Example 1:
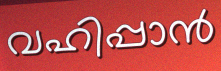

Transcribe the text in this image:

വഹിപ്പാൻ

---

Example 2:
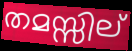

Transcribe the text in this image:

തമസ്സില്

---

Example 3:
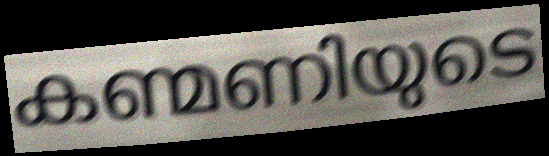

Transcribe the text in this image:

കണ്മണിയുടെ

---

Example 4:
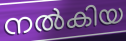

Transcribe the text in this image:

നൽകിയ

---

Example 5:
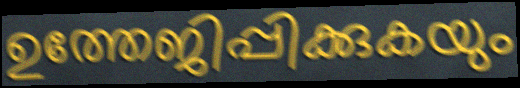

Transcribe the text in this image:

ഉത്തേജിപ്പിക്കുകയും